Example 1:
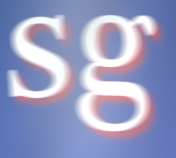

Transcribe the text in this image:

sg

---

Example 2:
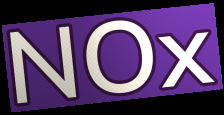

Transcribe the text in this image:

NOx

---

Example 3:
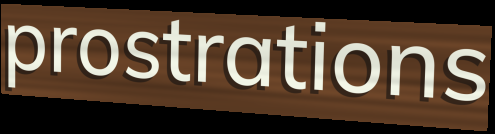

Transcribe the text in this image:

prostrations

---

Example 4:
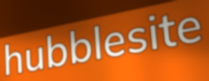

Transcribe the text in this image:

hubblesite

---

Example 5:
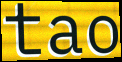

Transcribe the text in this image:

tao